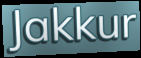
Jakkur